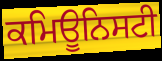
ਕਮਿਊਨਿਸਟੀ